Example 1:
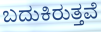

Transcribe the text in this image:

ಬದುಕಿರುತ್ತವೆ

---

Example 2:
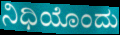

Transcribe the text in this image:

ನಿಧಿಯೊಂದು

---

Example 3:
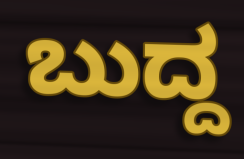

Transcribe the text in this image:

ಬುದ್ದ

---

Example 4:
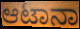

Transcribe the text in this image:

ಆಟಾನಾ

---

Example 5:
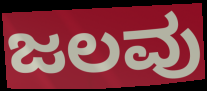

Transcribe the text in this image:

ಜಲವು